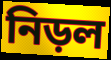
নিড়ল